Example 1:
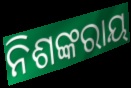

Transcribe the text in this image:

ନିଶଙ୍କରାୟ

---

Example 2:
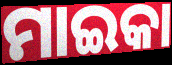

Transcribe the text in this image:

ମାଇକା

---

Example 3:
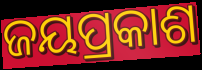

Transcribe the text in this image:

ଜୟପ୍ରକାଶ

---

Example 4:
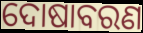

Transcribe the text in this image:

ଦୋଷାବରଣ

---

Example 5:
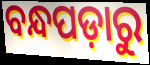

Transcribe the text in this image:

ବନ୍ଧପଡ଼ାରୁ